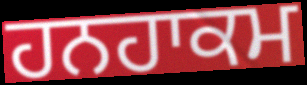
ਹਨਹਾਕਮ